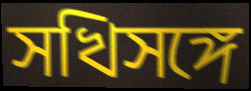
সখিসঙ্গে